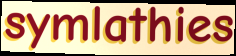
symlathies